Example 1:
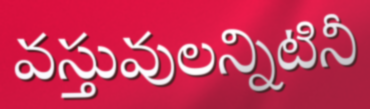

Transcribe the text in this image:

వస్తువులన్నిటినీ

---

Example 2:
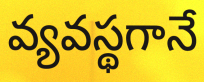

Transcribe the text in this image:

వ్యవస్థగానే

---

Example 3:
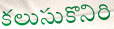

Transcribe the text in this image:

కలుసుకొనిరి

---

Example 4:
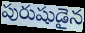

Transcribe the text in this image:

పురుషుడైన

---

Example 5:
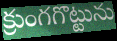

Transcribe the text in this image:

క్రుంగగొట్టును